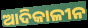
ଆଦିକାଳୀନ